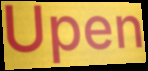
Upen